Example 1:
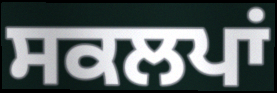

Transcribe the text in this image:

ਸਕਲਪਾਂ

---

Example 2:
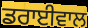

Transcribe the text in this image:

ਡਰਾਈਵਾਲ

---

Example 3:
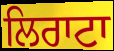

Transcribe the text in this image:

ਲਿਰਾਟਾ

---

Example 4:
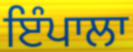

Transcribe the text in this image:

ਇੰਪਾਲਾ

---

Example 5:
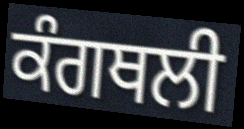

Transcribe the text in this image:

ਕੰਗਥਲੀ